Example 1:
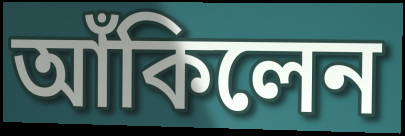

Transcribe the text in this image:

আঁকিলেন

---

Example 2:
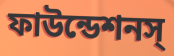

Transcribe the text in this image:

ফাউন্ডেশনস্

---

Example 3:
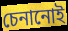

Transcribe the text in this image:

চেনানোই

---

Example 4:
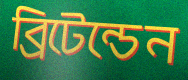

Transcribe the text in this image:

ব্রিটেন্ডেন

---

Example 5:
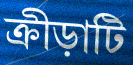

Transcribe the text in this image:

ক্রীড়াটি